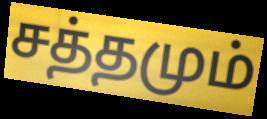
சத்தமும்